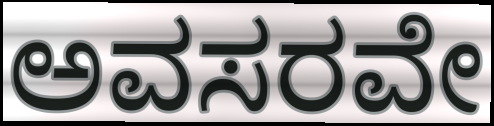
ಅವಸರವೇ